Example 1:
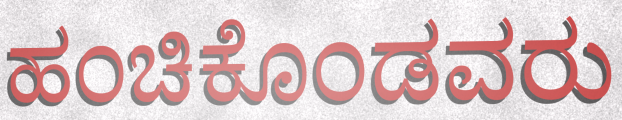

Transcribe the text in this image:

ಹಂಚಿಕೊಂಡವರು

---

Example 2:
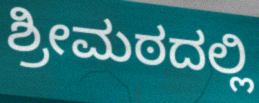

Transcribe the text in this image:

ಶ್ರೀಮಠದಲ್ಲಿ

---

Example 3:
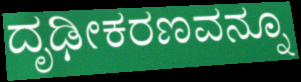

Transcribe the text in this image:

ದೃಢೀಕರಣವನ್ನೂ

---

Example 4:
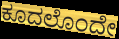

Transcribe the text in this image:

ಕೂದಲೊಂದೇ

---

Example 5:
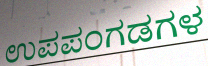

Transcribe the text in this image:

ಉಪಪಂಗಡಗಳ